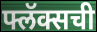
फ्लॅक्सची